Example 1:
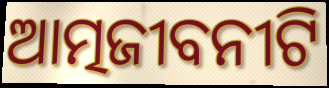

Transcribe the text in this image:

ଆତ୍ମଜୀବନୀଟି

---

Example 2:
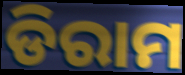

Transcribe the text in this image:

ଡିରାମ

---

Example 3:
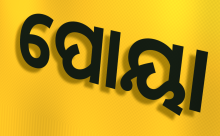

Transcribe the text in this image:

ପୋୟା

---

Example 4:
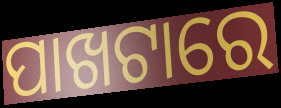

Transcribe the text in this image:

ପାଖଟାରେ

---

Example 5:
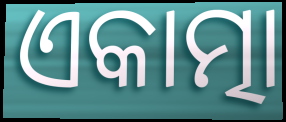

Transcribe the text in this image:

ଏକାତ୍ମା